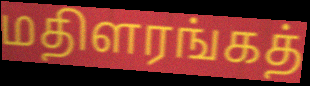
மதிளரங்கத்